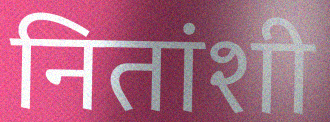
नितांशी